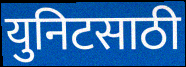
युनिटसाठी